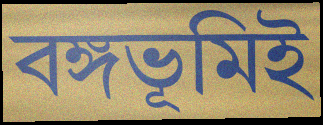
বঙ্গভূমিই